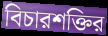
বিচারশক্তির